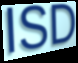
ISD